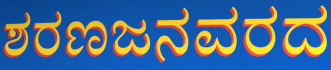
ಶರಣಜನವರದ